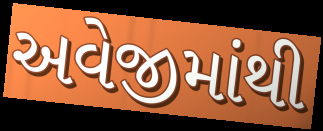
અવેજીમાંથી